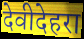
देवीदेहरा